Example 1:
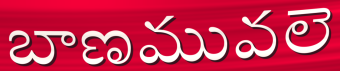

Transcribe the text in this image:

బాణమువలె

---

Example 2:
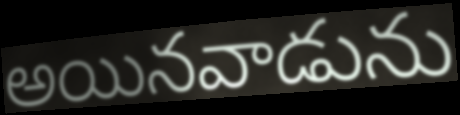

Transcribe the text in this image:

అయినవాడును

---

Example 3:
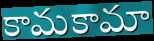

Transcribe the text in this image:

కామకామా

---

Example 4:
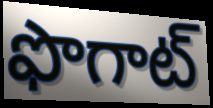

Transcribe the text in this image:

ఫొగాట్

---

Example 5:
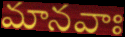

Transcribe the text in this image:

మానవాః